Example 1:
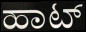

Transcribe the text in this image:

ಹಾಟ್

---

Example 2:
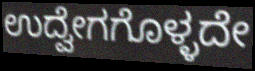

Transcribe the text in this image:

ಉದ್ವೇಗಗೊಳ್ಳದೇ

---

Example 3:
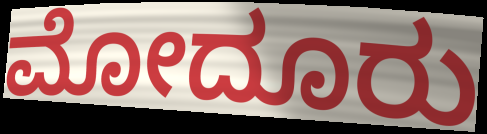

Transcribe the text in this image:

ಮೋದೂರು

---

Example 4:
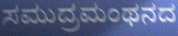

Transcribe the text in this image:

ಸಮುದ್ರಮಂಥನದ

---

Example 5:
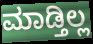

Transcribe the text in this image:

ಮಾಡ್ತಿಲ್ಲ